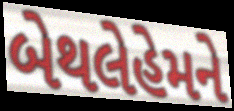
બેથલેહેમને